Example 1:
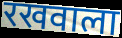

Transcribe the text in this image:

रखवाला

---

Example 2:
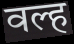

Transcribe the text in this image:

वल्ह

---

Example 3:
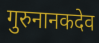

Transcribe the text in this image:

गुरुनानकदेव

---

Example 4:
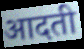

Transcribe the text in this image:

आदती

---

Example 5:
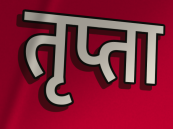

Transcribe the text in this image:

तृप्ता